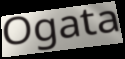
Ogata